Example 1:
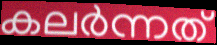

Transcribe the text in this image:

കലർന്നത്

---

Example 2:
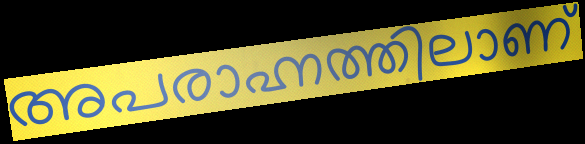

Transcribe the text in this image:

അപരാഹ്നത്തിലാണ്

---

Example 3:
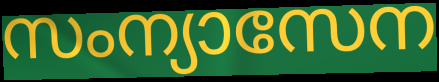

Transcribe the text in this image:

സംന്യാസേന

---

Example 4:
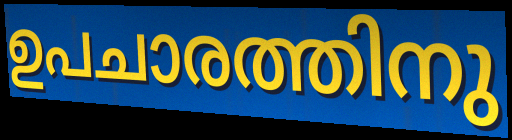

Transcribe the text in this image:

ഉപചാരത്തിനു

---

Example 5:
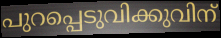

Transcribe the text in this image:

പുറപ്പെടുവിക്കുവിന്